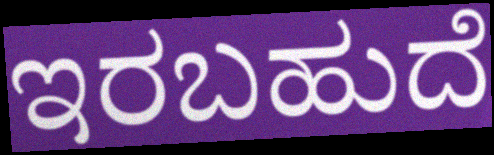
ಇರಬಹುದೆ